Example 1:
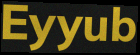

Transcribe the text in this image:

Eyyub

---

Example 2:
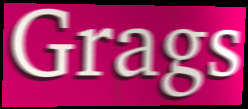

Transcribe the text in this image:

Grags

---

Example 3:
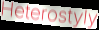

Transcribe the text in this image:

Heterostyly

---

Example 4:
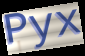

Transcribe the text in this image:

Pyx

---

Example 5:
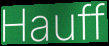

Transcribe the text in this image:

Hauff